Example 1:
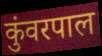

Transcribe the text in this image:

कुंवरपाल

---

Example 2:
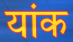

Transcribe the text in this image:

यांक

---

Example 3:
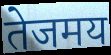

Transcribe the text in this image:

तेजमय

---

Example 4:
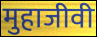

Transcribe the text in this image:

मुहाजीवी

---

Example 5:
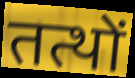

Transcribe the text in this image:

तत्थों